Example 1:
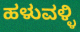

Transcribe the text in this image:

ಹಳುವಳ್ಳಿ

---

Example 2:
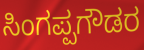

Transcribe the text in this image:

ಸಿಂಗಪ್ಪಗೌಡರ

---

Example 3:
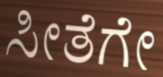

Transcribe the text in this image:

ಸೀತೆಗೇ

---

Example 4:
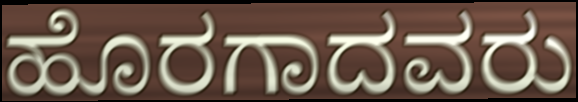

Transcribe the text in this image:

ಹೊರಗಾದವರು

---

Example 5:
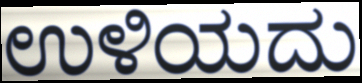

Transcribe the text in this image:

ಉಳಿಯದು